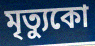
মৃত্যুকো